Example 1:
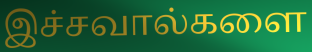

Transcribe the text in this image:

இச்சவால்களை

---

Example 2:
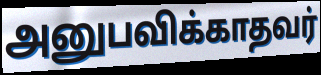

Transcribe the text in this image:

அனுபவிக்காதவர்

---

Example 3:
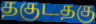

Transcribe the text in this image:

தகுடதகு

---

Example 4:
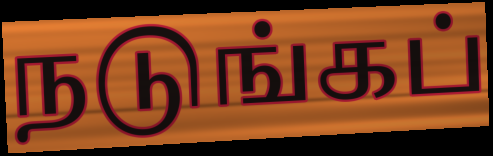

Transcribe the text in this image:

நடுங்கப்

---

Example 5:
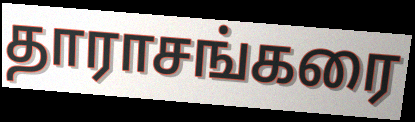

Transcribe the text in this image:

தாராசங்கரை